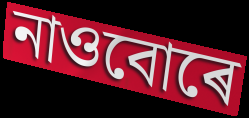
নাওবোৰে